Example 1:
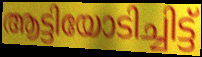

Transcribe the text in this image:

ആട്ടിയോടിച്ചിട്ട്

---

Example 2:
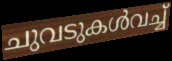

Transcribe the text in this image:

ചുവടുകൾവച്ച്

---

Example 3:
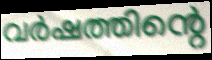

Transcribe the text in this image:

വർഷത്തിന്റെ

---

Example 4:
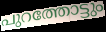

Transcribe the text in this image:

പുറത്തോട്ടും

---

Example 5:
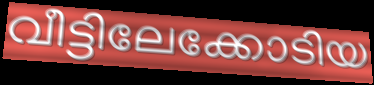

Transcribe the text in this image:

വീട്ടിലേക്കോടിയ